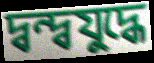
দ্বন্দ্বযুদ্ধে